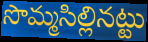
సొమ్మసిల్లినట్టు